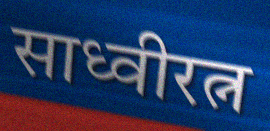
साध्वीरत्न